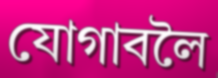
যোগাবলৈ